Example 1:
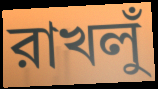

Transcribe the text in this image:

রাখলুঁ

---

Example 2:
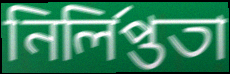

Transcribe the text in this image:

নির্লিপ্ততা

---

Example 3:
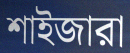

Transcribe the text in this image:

শাইজারা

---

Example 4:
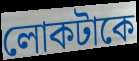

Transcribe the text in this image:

লোকটাকে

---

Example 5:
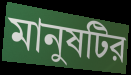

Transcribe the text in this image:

মানুষটির